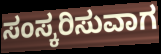
ಸಂಸ್ಕರಿಸುವಾಗ